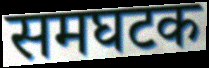
समघटक